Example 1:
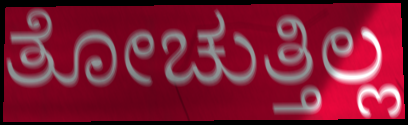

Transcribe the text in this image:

ತೋಚುತ್ತಿಲ್ಲ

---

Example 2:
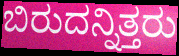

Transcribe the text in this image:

ಬಿರುದನ್ನಿತ್ತರು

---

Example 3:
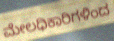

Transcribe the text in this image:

ಮೇಲಧಿಕಾರಿಗಳಿಂದ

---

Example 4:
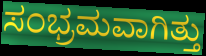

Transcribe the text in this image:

ಸಂಭ್ರಮವಾಗಿತ್ತು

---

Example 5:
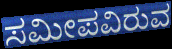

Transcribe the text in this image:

ಸಮೀಪವಿರುವ